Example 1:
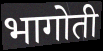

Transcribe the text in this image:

भागोती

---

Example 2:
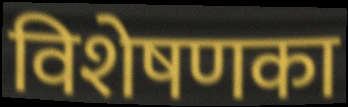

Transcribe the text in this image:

विशेषणका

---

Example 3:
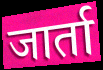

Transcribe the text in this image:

जार्ता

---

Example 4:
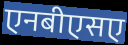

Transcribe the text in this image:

एनबीएसए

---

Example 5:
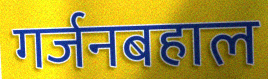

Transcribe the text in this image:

गर्जनबहाल